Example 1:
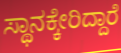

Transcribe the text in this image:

ಸ್ಥಾನಕ್ಕೇರಿದ್ದಾರೆ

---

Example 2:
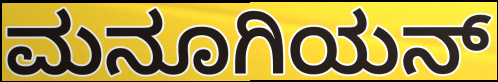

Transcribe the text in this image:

ಮನೂಗಿಯನ್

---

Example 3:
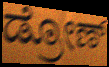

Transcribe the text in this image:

ಡ್ರೋಣ್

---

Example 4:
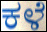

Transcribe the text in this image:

ಕಳೆ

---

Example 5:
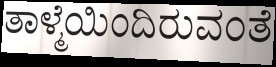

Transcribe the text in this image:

ತಾಳ್ಮೆಯಿಂದಿರುವಂತೆ